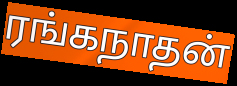
ரங்கநாதன்